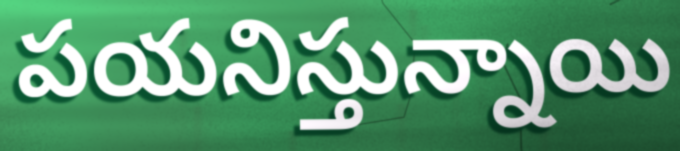
పయనిస్తున్నాయి